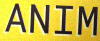
ANIM